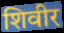
शिवीर